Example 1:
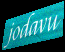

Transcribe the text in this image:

jodavu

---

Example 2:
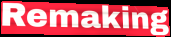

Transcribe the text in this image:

Remaking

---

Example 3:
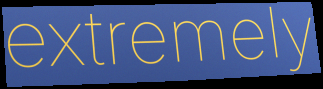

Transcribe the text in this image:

extremely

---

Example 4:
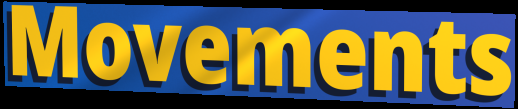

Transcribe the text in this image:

Movements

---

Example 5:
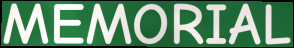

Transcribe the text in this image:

MEMORIAL